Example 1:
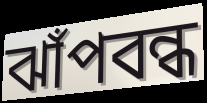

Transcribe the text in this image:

ঝাঁপবন্ধ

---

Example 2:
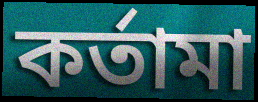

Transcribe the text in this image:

কর্তামা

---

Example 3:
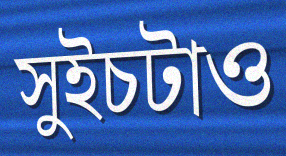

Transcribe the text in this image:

সুইচটাও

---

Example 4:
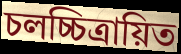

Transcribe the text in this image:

চলচ্চিত্রায়িত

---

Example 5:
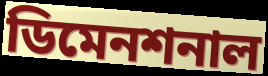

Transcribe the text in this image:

ডিমেনশনাল